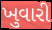
ખુવારી